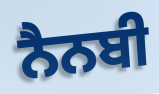
ਨੈਨਬੀ